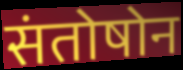
संतोषोन